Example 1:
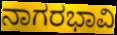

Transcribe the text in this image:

ನಾಗರಭಾವಿ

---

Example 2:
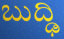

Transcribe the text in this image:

ಬುದ್ಢಿ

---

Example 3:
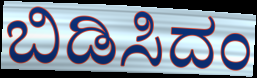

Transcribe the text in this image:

ಬಿಡಿಸಿದಂ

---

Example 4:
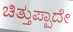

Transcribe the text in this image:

ಚಿತ್ತುಪ್ಪಾದೇ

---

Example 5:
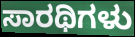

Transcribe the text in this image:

ಸಾರಥಿಗಳು